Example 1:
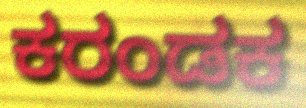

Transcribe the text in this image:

ಕರಂಡಕ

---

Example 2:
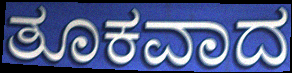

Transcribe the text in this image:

ತೂಕವಾದ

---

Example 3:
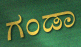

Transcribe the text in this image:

ಗಂಡಾ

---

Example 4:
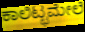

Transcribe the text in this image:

ಕಾಲಿಟ್ಟಮೇಲೆ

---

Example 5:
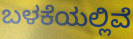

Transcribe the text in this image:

ಬಳಕೆಯಲ್ಲಿವೆ